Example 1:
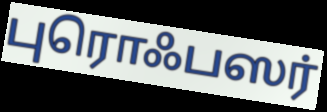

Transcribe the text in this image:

புரொஃபஸர்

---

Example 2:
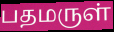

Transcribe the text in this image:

பதமருள்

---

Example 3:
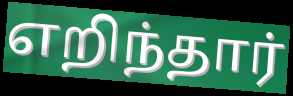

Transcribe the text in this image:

எறிந்தார்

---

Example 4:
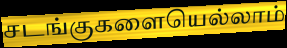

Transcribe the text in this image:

சடங்குகளையெல்லாம்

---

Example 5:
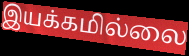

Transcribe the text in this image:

இயக்கமில்லை